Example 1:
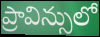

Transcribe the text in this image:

ప్రావిన్సులో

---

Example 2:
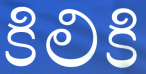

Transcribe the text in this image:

కిలికి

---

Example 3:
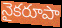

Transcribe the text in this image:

నైకరూపా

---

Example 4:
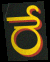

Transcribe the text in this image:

రే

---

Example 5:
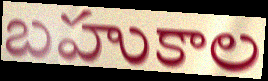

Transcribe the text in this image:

బహుకాల